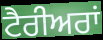
ਟੈਰੀਅਰਾਂ